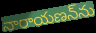
నారాయణన్‌ను